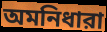
অমনিধারা